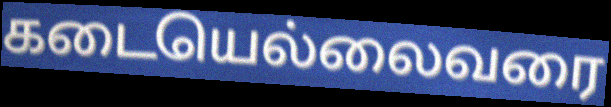
கடையெல்லைவரை